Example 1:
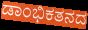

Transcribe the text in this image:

ಡಾಂಭಿಕತನದ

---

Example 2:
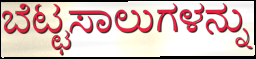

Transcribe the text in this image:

ಬೆಟ್ಟಸಾಲುಗಳನ್ನು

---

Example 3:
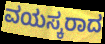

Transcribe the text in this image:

ವಯಸ್ಕರಾದ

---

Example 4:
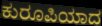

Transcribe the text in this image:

ಕುರೂಪಿಯಾದ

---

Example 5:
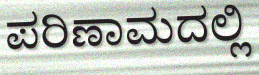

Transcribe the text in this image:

ಪರಿಣಾಮದಲ್ಲಿ